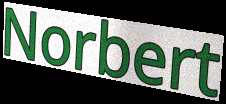
Norbert